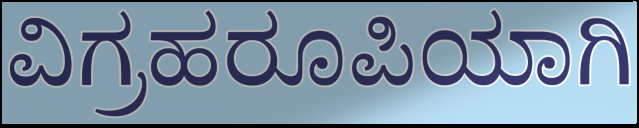
ವಿಗ್ರಹರೂಪಿಯಾಗಿ